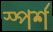
স্পর্শ